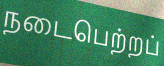
நடைபெற்றப்